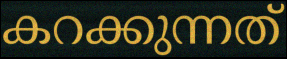
കറക്കുന്നത്